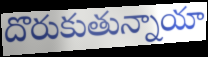
దొరుకుతున్నాయా